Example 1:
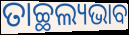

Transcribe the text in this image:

ତାଚ୍ଛଲ୍ୟଭାବ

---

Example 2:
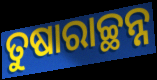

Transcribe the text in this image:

ତୁଷାରାଚ୍ଛନ୍ନ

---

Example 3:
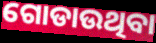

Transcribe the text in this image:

ଗୋଡାଉଥିବା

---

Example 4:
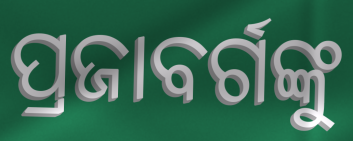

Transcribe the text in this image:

ପ୍ରଜାବର୍ଗଙ୍କୁ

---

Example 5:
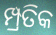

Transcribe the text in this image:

ମ୍ପ୍ରତିକ